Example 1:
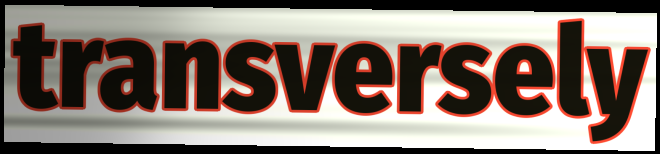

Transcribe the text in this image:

transversely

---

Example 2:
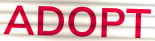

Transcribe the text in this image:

ADOPT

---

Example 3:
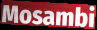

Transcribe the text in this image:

Mosambi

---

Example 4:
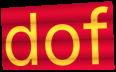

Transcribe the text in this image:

dof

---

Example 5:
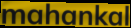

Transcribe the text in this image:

mahankal